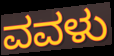
ವವಳು